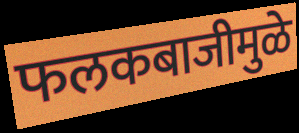
फलकबाजीमुळे